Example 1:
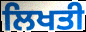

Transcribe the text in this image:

ਲਿਖਤੀ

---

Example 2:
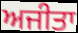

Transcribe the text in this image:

ਅਜੀਤਾ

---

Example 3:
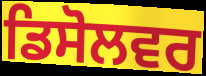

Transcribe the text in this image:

ਡਿਸੋਲਵਰ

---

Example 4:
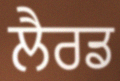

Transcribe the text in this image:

ਲੈਰਡ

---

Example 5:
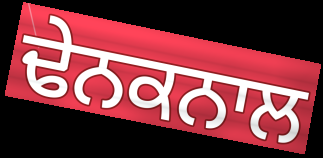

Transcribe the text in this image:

ਢੇਨਕਨਾਲ